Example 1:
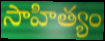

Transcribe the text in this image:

సాహిత్యం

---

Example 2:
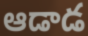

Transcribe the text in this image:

ఆడాడ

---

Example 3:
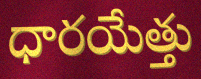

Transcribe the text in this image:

ధారయేత్తు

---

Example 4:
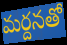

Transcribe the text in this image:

మర్దనతో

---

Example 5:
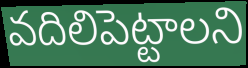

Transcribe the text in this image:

వదిలిపెట్టాలని